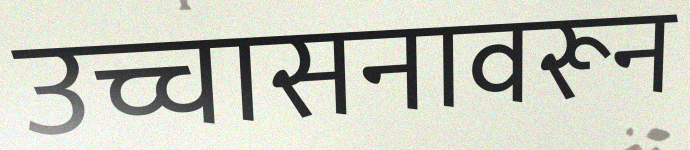
उच्चासनावरून